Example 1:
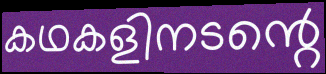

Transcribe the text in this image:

കഥകളിനടന്റെ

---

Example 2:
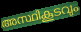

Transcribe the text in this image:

അസ്ഥികൂടവും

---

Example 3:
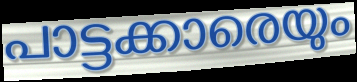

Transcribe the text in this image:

പാട്ടക്കാരെയും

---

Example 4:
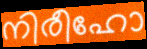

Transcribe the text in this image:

നിരീഹോ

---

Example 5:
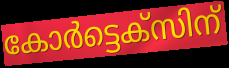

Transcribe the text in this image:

കോർട്ടെക്സിന്